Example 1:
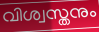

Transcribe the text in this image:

വിശ്വസ്തനും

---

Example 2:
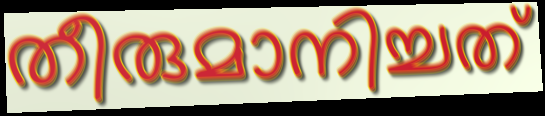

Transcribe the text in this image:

തീരുമാനിച്ചത്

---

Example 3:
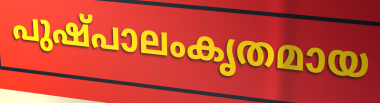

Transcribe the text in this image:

പുഷ്പാലംകൃതമായ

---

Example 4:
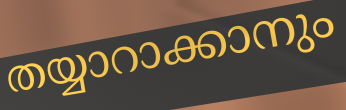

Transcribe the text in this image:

തയ്യാറാക്കാനും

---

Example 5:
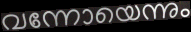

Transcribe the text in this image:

വന്നോയെന്നും